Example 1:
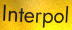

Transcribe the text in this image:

Interpol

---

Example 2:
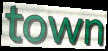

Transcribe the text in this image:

town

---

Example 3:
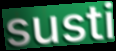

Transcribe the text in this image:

susti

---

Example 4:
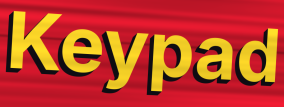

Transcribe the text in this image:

Keypad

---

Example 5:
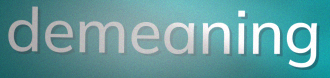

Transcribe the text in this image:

demeaning